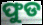
ଫୁଡ